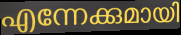
എന്നേക്കുമായി